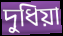
দুধিয়া